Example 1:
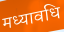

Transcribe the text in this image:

मध्यावधि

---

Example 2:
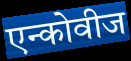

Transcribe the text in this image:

एन्कोवीज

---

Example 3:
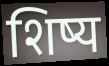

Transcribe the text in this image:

शिष्य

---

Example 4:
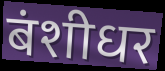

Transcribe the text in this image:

बंशीधर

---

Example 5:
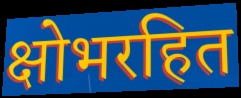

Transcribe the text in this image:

क्षोभरहित